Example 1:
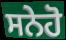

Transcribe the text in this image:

ਸਨੇਹੋ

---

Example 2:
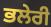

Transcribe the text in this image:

ਭਲੇਰੀ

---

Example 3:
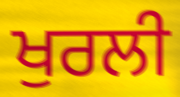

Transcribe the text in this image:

ਖੁਰਲੀ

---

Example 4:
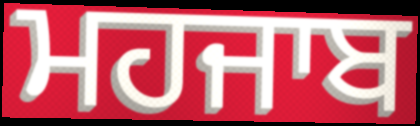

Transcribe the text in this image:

ਮਹਜਾਬ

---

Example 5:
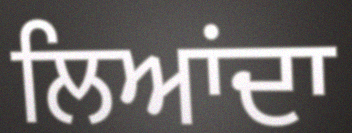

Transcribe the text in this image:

ਲਿਆਂਦਾ